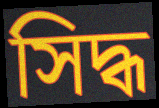
সিদ্ধ